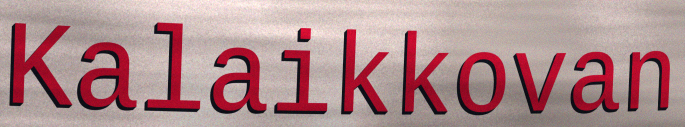
Kalaikkovan